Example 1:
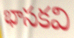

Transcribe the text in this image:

భాసకవి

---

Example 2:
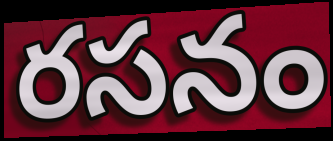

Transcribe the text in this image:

రసనం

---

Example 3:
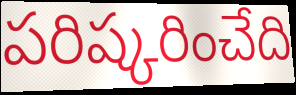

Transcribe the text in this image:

పరిష్కరించేది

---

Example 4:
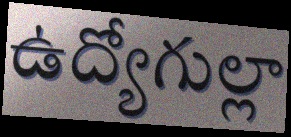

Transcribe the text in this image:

ఉద్యోగుల్లా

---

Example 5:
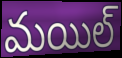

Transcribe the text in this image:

మయిల్